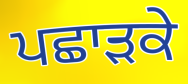
ਪਛਾੜਕੇ